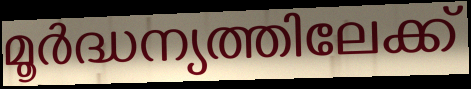
മൂർദ്ധന്യത്തിലേക്ക്